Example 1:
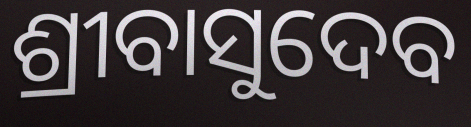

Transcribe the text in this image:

ଶ୍ରୀବାସୁଦେବ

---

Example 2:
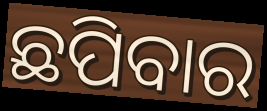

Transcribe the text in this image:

ଛପିବାର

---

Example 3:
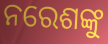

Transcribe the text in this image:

ନରେଶଙ୍କୁ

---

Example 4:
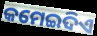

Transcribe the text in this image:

କମେଇଦିଏ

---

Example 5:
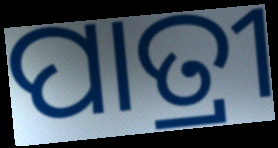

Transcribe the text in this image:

ପାତ୍ରୀ